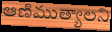
ఆణిముత్యాలని